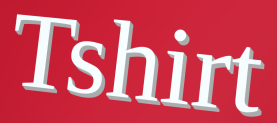
Tshirt